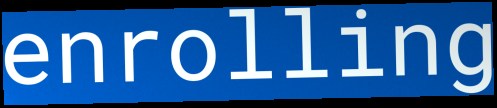
enrolling